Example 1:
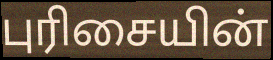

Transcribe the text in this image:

புரிசையின்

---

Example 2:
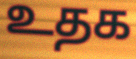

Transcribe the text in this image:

உதக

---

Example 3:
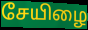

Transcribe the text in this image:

சேயிழை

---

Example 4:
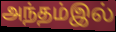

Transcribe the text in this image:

அந்தம்இல்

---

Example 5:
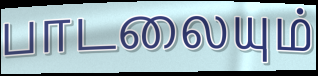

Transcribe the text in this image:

பாடலையும்